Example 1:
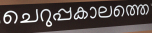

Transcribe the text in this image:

ചെറുപ്പകാലത്തെ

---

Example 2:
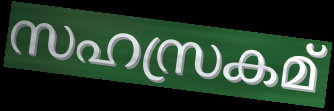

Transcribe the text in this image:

സഹസ്രകമ്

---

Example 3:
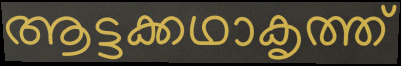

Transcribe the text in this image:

ആട്ടക്കഥാകൃത്ത്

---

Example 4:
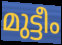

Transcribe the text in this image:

മുട്ടീം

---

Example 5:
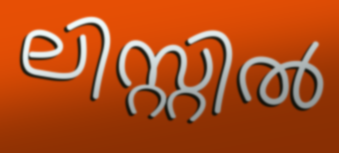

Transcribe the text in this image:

ലിസ്റ്റിൽ